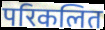
परिकलित